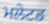
ਮਲੇਟਡ